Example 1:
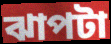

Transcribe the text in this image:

ঝাপটা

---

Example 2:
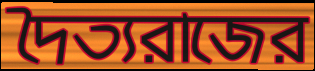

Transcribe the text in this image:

দৈত্যরাজের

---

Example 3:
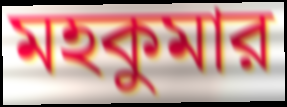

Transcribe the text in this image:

মহকুমার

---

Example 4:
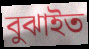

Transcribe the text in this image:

বুঝাইত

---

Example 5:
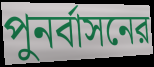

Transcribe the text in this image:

পুনর্বাসনের